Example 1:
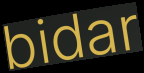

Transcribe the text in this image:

bidar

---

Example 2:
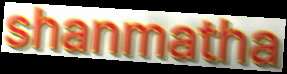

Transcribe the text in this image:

shanmatha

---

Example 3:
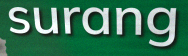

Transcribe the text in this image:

surang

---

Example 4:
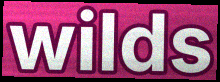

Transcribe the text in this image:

wilds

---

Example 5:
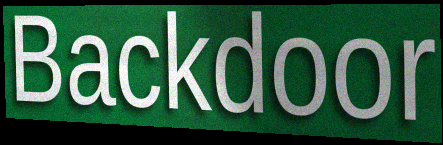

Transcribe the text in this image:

Backdoor